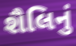
શૈલિનું